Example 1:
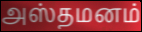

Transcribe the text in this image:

அஸ்தமனம்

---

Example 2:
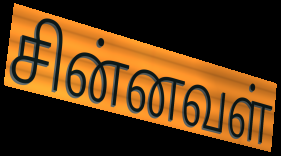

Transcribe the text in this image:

சின்னவள்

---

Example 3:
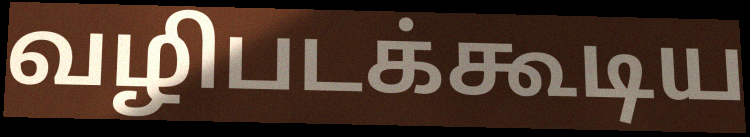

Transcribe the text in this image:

வழிபடக்கூடிய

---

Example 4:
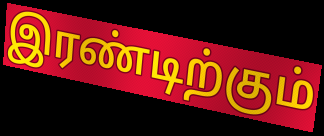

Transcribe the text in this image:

இரண்டிற்கும்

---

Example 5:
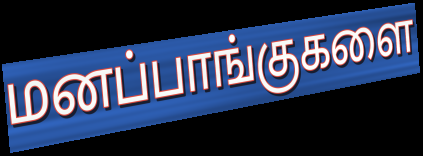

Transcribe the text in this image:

மனப்பாங்குகளை